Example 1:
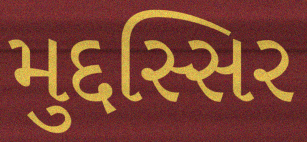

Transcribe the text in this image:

મુદ્દસ્સિર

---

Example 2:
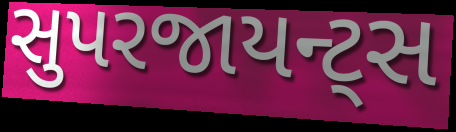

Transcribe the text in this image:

સુપરજાયન્ટ્સ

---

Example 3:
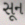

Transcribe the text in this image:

સૂન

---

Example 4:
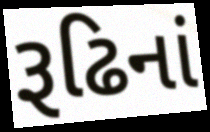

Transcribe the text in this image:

રૂઢિનાં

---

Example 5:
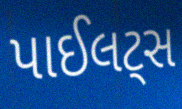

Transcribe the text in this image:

પાઈલટ્સ